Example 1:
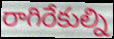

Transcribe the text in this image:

రాగిరేకుల్ని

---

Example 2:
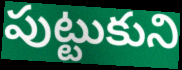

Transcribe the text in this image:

పుట్టుకుని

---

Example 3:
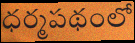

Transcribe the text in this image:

ధర్మపథంలో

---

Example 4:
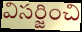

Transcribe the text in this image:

విసర్జించి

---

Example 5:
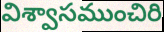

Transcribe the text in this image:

విశ్వాసముంచిరి